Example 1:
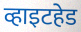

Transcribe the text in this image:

व्हाइटहेड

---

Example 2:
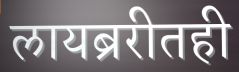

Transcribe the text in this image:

लायब्ररीतही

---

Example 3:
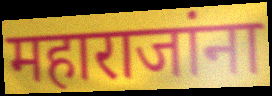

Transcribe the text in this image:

महाराजांना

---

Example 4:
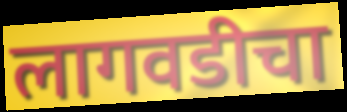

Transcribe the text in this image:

लागवडीचा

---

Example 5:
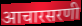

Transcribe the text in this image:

आचारसरणी